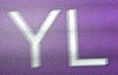
YL